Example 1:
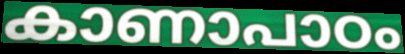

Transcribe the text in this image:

കാണാപാഠം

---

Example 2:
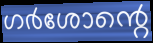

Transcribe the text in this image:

ഗർശോന്റെ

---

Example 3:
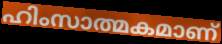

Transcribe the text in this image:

ഹിംസാത്മകമാണ്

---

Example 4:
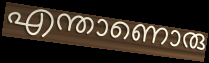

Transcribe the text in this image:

എന്താണൊരു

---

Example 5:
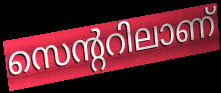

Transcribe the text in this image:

സെന്ററിലാണ്